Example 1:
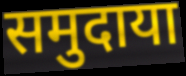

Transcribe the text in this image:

समुदाया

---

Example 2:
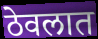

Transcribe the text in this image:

ठेवलात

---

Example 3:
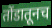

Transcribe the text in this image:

तोंडातूनच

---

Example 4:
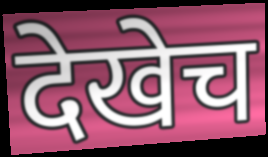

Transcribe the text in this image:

देखेच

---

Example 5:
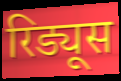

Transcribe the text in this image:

रिड्यूस